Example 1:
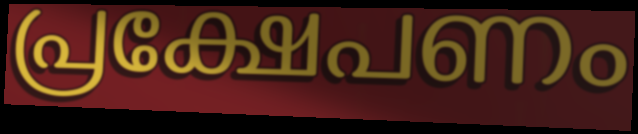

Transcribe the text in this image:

പ്രക്ഷേപണം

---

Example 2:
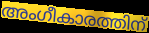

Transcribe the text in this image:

അംഗീകാരത്തിന്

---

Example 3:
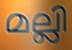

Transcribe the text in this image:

മല്ലി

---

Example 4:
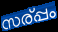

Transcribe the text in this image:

സര്പ്പം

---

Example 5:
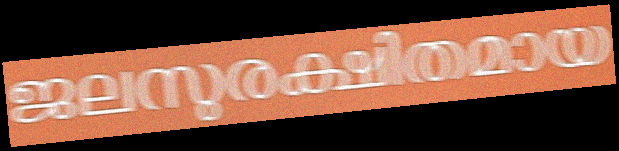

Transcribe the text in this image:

ജലസുരക്ഷിതമായ